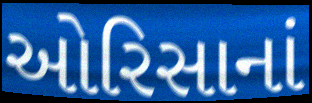
ઓરિસાનાં